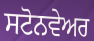
ਸਟੋਨਵੇਅਰ